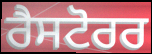
ਰੈਸਟੋਰਰ